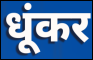
धूंकर